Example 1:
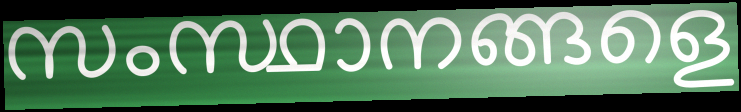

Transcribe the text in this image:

സംസ്ഥാനങ്ങളെ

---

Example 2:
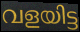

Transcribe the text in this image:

വളയിട്ട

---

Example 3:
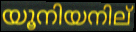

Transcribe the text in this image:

യൂനിയനില്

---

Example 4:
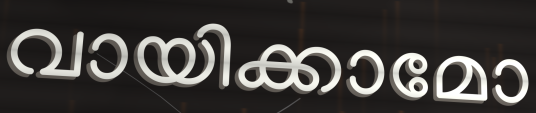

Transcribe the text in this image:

വായിക്കാമോ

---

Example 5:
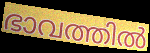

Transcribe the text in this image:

ഭാവത്തിൽ